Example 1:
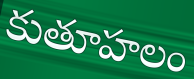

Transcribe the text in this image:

కుతూహలం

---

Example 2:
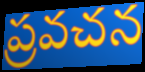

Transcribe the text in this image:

ప్రవచన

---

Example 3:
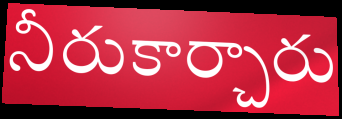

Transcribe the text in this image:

నీరుకార్చారు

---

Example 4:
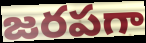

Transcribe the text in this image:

జరపగా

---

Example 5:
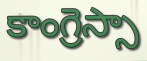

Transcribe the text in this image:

కాంగ్రెస్సా